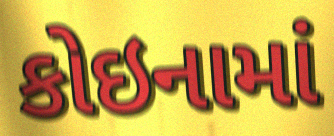
કોઇનામાં